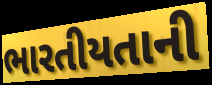
ભારતીયતાની